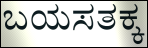
ಬಯಸತಕ್ಕ